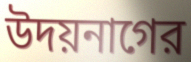
উদয়নাগের